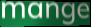
mange